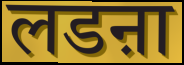
लडऩा